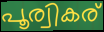
പൂര്വികര്